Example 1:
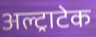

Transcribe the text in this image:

अल्ट्राटेक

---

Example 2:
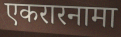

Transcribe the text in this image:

एकरारनामा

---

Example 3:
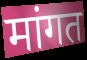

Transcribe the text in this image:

मांगत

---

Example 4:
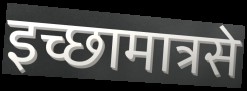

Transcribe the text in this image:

इच्छामात्रसे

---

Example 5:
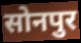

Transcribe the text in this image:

सोनपुर